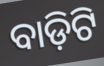
ବାଡ଼ିଟି